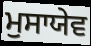
ਮੁਸਾਯੇਵ